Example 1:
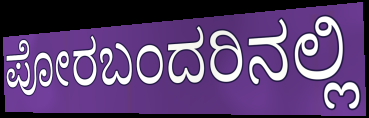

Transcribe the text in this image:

ಪೋರಬಂದರಿನಲ್ಲಿ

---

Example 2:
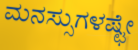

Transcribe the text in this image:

ಮನಸ್ಸುಗಳಷ್ಟೇ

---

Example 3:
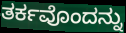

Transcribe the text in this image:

ತರ್ಕವೊಂದನ್ನು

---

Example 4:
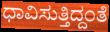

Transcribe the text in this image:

ಧಾವಿಸುತ್ತಿದ್ದಂತೆ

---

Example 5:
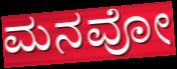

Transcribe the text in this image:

ಮನವೋ